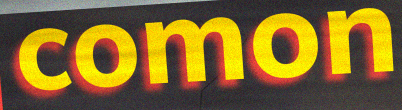
comon